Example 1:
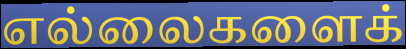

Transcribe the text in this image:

எல்லைகளைக்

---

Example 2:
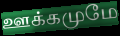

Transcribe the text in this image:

ஊக்கமுமே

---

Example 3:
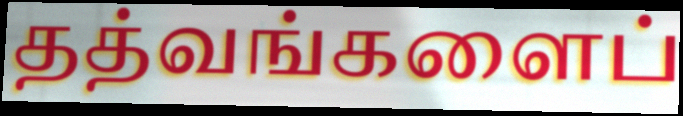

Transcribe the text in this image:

தத்வங்களைப்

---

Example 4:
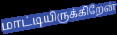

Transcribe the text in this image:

மாட்டியிருக்கிறேன்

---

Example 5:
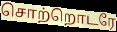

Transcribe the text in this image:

சொற்றொடரே